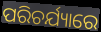
ପରିଚର୍ଯ୍ୟାରେ